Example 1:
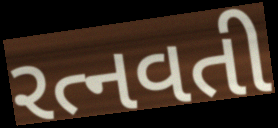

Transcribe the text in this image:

રત્નવતી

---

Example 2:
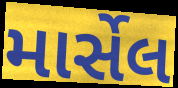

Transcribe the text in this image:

માર્સેલ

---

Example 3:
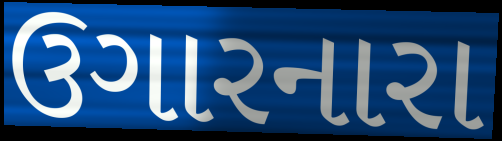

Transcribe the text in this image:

ઉગારનારા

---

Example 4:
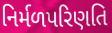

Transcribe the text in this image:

નિર્મળપરિણતિ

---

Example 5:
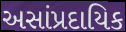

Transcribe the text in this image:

અસાંપ્રદાયિક